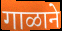
गाळाने